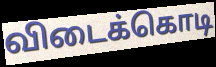
விடைக்கொடி